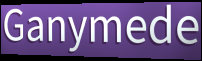
Ganymede